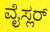
ವೈಸ್ಲರ್